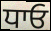
ਧਾਓ